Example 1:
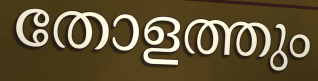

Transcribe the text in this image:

തോളത്തും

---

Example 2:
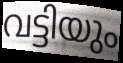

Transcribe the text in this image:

വട്ടിയും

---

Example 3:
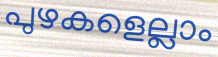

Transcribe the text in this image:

പുഴകളെല്ലാം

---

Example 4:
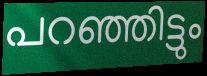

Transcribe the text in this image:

പറഞ്ഞിട്ടും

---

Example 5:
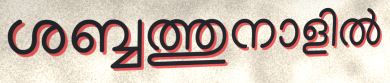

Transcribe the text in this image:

ശബ്ബത്തുനാളിൽ